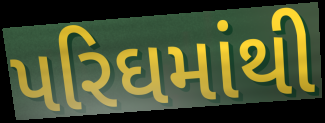
પરિઘમાંથી